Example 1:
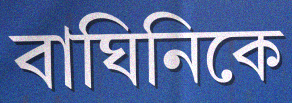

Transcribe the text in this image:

বাঘিনিকে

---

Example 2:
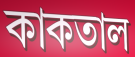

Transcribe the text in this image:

কাকতাল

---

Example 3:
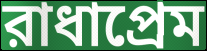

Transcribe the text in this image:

রাধাপ্রেম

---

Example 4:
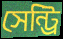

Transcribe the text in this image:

সেন্ট্রি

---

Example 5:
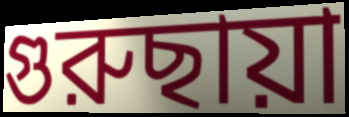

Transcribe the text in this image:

গুরুছায়া